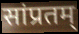
सांप्रतम्